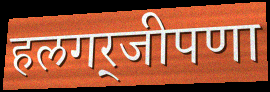
हलगर्जीपणा